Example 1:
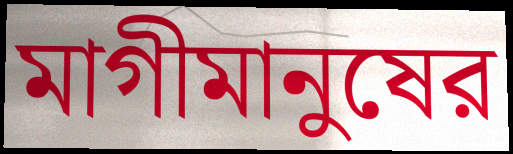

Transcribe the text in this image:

মাগীমানুষের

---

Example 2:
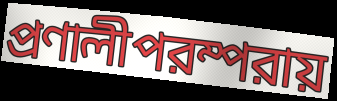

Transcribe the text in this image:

প্রণালীপরম্পরায়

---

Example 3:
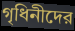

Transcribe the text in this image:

গৃধিনীদের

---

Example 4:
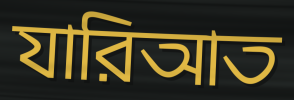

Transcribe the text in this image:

যারিআত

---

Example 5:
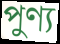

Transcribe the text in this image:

পুণ্য